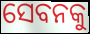
ସେବନକୁ